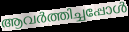
ആവർത്തിച്ചപ്പോൾ